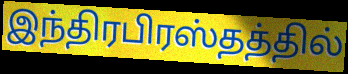
இந்திரபிரஸ்தத்தில்